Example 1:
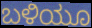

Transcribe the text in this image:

ಬಳಿಯೂ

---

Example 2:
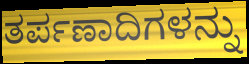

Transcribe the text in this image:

ತರ್ಪಣಾದಿಗಳನ್ನು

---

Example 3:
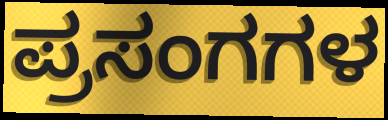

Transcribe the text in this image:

ಪ್ರಸಂಗಗಳ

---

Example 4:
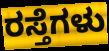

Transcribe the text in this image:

ರಸ್ತೆಗಳು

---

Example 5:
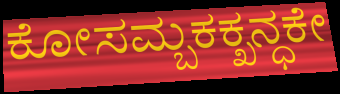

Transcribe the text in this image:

ಕೋಸಮ್ಬಕಕ್ಖನ್ಧಕೇ